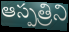
ఆస్పత్రిని